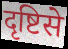
दृष्टिसे